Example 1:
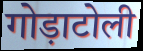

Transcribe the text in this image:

गोड़ाटोली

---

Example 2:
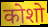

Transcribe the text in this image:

कोशो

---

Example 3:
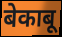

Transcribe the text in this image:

बेकाबू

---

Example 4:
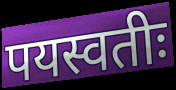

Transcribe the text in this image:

पयस्वतीः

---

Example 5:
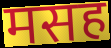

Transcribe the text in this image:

मसह